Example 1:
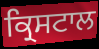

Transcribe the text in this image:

ਕ੍ਰਿਸਟਾਲ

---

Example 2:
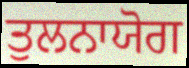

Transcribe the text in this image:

ਤੁਲਨਾਯੋਗ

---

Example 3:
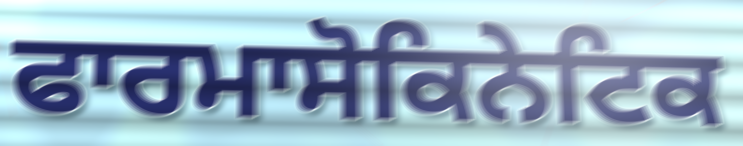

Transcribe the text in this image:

ਫਾਰਮਾਸੋਕਿਨੇਟਿਕ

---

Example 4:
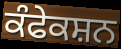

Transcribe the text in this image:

ਕੰਫੇਕਸ਼ਨ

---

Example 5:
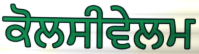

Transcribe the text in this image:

ਕੋਲਸੀਵੇਲਮ